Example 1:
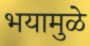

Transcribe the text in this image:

भयामुळे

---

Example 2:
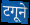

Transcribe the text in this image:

टगूने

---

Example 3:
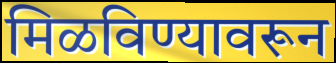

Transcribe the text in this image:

मिळविण्यावरून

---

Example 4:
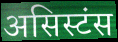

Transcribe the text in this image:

असिस्टंस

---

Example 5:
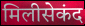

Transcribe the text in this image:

मिलीसेकंद